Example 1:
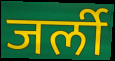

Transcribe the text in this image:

जर्ली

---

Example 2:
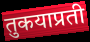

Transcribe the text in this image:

तुकयाप्रती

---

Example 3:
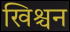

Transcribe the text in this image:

खिश्चन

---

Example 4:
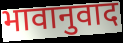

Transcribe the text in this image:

भावानुवाद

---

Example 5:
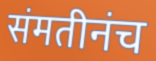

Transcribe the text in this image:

संमतीनंच